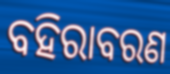
ବହିରାବରଣ